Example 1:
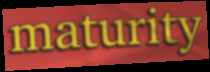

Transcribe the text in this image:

maturity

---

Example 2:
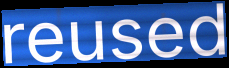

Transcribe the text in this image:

reused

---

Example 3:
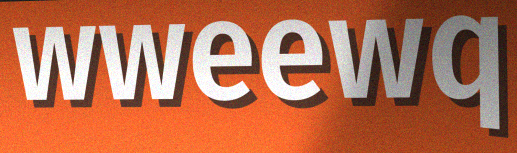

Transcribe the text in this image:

wweewq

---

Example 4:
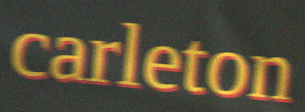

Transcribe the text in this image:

carleton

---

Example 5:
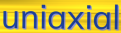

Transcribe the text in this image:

uniaxial